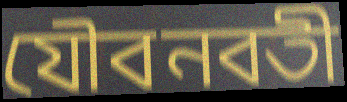
যৌবনবতী